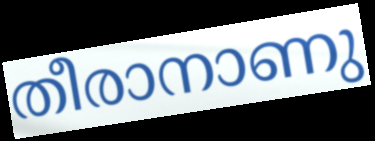
തീരാനാണു